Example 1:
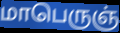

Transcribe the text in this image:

மாபெருஞ்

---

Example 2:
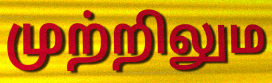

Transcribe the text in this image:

முற்றிலும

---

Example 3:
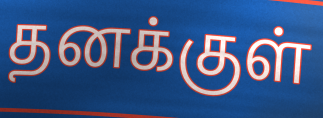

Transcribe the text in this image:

தனக்குள்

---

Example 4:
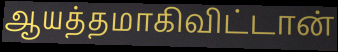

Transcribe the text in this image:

ஆயத்தமாகிவிட்டான்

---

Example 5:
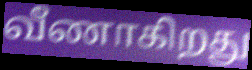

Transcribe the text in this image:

வீணாகிறது